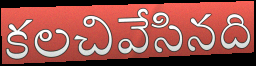
కలచివేసినది